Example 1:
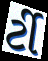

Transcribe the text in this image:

ર્ટી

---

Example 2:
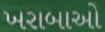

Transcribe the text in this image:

ખરાબાઓ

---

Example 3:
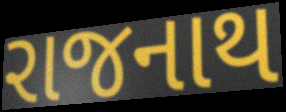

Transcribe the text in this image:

રાજનાથ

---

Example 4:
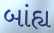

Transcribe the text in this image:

બાંહ્ય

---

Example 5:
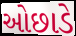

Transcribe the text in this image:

ઓછાડે